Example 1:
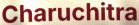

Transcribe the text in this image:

Charuchitra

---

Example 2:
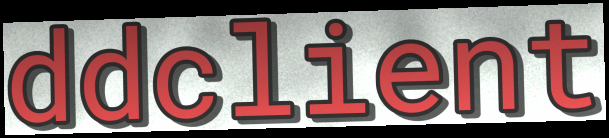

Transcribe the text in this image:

ddclient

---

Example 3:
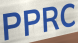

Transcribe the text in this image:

PPRC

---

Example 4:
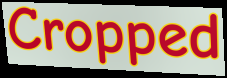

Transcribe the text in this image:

Cropped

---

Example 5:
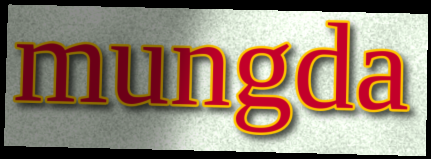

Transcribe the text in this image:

mungda